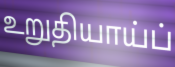
உறுதியாய்ப்